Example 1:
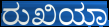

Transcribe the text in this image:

ರುಖಿಯಾ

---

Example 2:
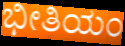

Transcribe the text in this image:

ಭೀತಿಯಂ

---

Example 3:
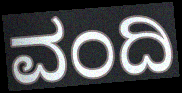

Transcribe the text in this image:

ವಂದಿ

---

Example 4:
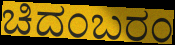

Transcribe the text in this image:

ಚಿದಂಬರಂ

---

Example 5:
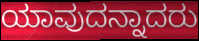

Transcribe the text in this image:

ಯಾವುದನ್ನಾದರು